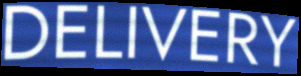
DELIVERY